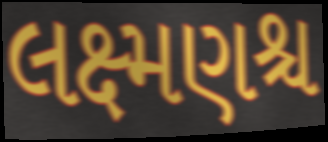
લક્ષ્મણશ્ચ